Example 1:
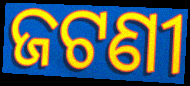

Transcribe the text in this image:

ଜଟଣୀ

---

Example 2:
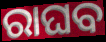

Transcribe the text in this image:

ରାଘବ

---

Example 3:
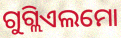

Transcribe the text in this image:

ଗୁଗ୍ଲିଏଲମୋ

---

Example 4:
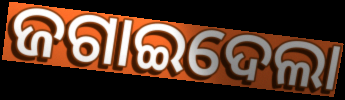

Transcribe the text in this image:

ଜଗାଇଦେଲା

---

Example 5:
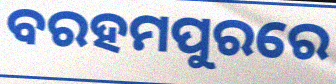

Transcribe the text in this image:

ବରହମପୁରରେ